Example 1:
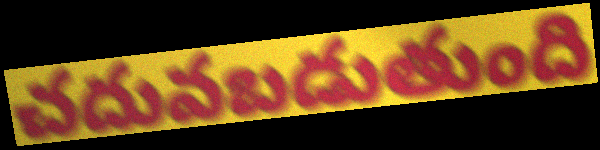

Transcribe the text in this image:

చదువబడుతుంది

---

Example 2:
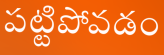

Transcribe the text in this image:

పట్టిపోవడం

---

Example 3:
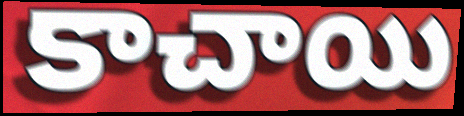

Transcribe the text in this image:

కాచాయి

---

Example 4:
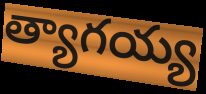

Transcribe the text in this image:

త్యాగయ్య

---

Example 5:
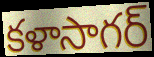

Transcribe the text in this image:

కళాసాగర్